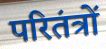
परितंत्रों